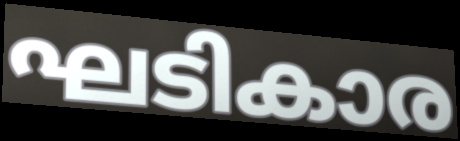
ഘടികാര